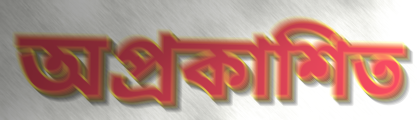
অপ্রকাশিত